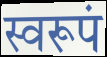
स्वरूपं